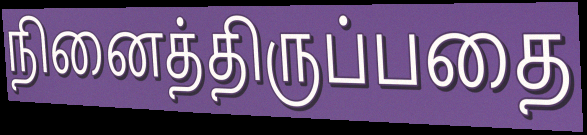
நினைத்திருப்பதை